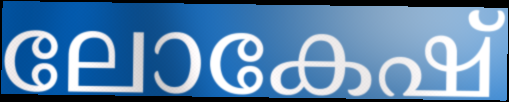
ലോകേഷ്